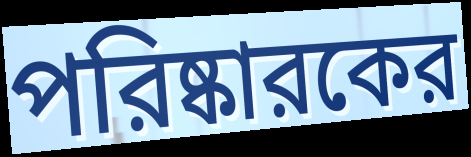
পরিষ্কারকের